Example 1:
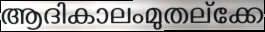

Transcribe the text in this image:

ആദികാലംമുതല്ക്കേ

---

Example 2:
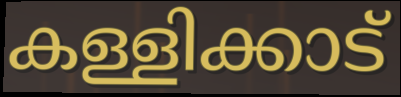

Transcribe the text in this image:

കള്ളിക്കാട്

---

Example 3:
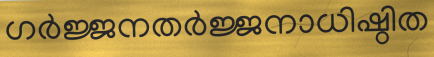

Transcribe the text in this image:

ഗർജ്ജനതർജ്ജനാധിഷ്ഠിത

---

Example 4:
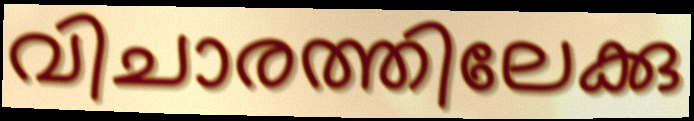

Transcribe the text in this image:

വിചാരത്തിലേക്കു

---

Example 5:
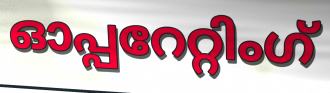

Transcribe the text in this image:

ഓപ്പറേറ്റിംഗ്